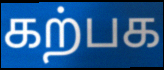
கற்பக